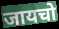
जायचो